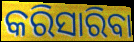
କରିସାରିବା